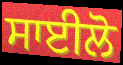
ਸਾਈਲੋ